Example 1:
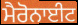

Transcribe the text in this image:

ਮੈਰੋਨਾਈਟ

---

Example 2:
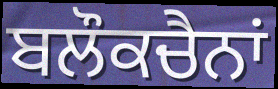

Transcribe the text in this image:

ਬਲੌਕਚੈਨਾਂ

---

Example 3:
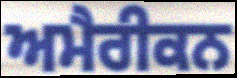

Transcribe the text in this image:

ਅਮੈਰੀਕਨ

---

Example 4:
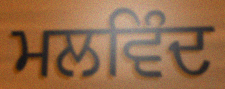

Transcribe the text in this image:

ਮਲਵਿੰਦ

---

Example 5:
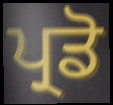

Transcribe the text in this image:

ਪ੍ਰਡੋ